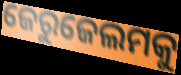
ଜେରୁଜେଲମକୁ